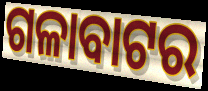
ଗଳାବାଟର